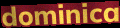
dominica